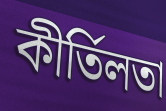
কীৰ্তিলতা